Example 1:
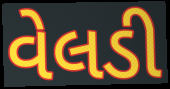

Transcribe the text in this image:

વેલડી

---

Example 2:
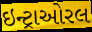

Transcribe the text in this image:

ઇન્ટ્રાઓરલ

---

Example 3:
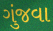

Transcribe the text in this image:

ગુંજવા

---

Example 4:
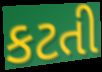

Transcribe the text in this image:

કટતી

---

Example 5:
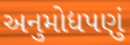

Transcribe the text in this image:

અનુમોદ્યપણું